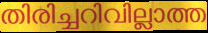
തിരിച്ചറിവില്ലാത്ത